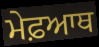
ਮੇਫ਼ਆਥ